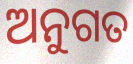
ଅନୁଗତ